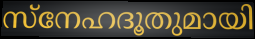
സ്നേഹദൂതുമായി